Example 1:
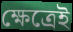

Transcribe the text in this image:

ক্ষেত্রেই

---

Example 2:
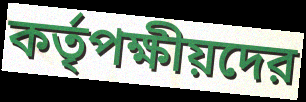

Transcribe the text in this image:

কর্তৃপক্ষীয়দের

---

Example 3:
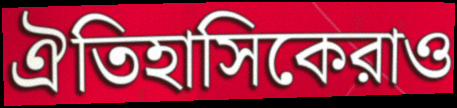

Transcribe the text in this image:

ঐতিহাসিকেরাও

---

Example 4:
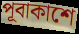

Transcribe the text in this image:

পূবাকাশে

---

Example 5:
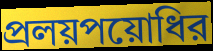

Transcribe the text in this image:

প্রলয়পয়োধির